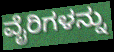
ವೈರಿಗಳನ್ನು